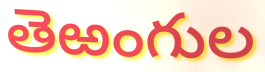
తెఱంగుల